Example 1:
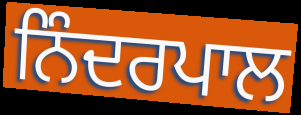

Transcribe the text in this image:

ਨਿੰਦਰਪਾਲ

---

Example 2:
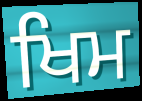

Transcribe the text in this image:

ਖਿਮ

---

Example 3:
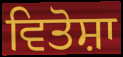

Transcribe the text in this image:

ਵਿਤੋਸ਼ਾ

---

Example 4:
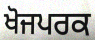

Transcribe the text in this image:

ਖੋਜਪਰਕ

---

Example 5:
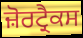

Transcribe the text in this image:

ਜ਼ੋਰਟ੍ਰੈਕਸ